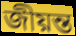
জীয়ন্ত